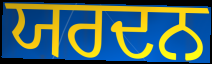
ਯਰਦਨ